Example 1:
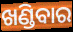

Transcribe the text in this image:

ଖଣ୍ଡିବାର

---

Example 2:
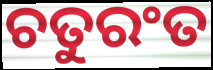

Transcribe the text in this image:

ଚତୁରଂତ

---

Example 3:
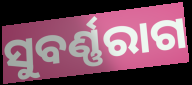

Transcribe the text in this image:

ସୁବର୍ଣ୍ଣରାଗ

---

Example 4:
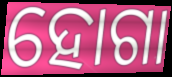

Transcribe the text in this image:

ହୋଗା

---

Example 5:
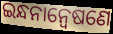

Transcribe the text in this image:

ଇନ୍ଧନାନ୍ଵେଷଣେ